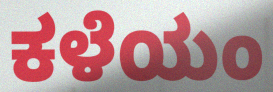
ಕಳೆಯಂ